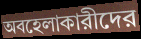
অবহেলাকারীদের